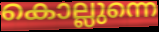
കൊല്ലുന്നെ